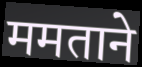
ममताने